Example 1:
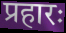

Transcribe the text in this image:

प्रहारः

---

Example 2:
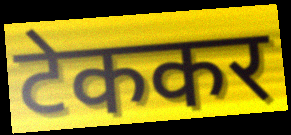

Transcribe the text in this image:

टेककर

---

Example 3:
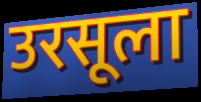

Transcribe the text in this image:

उरसूला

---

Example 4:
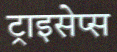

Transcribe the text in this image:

ट्राइसेप्स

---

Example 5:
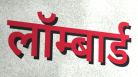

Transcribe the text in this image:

लॉम्बार्ड